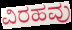
ವಿರಹವು